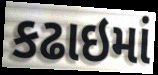
કઢાઇમાં